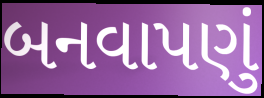
બનવાપણું